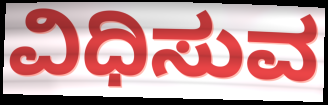
ವಿಧಿಸುವ